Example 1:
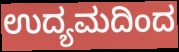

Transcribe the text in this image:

ಉದ್ಯಮದಿಂದ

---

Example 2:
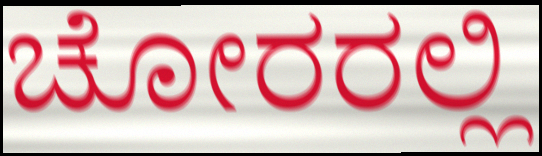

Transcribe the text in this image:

ಚೋರರಲ್ಲಿ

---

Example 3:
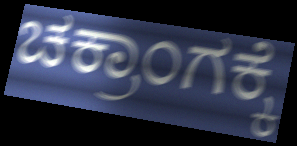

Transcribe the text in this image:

ಚಕ್ರಾಂಗಕ್ಕೆ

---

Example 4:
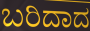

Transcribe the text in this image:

ಬರಿದಾದ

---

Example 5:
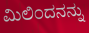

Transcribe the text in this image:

ಮಿಲಿಂದನನ್ನು